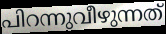
പിറന്നുവീഴുന്നത്